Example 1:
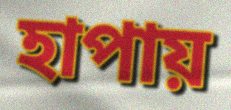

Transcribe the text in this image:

হাপায়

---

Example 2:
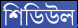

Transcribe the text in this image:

শিডিউল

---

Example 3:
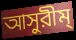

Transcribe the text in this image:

আসুরীম্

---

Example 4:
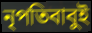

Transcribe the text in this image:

নৃপতিবাবুই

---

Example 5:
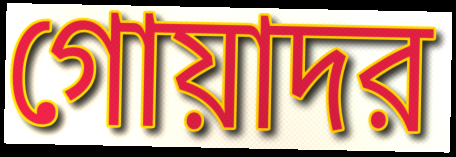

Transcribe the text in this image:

গোয়াদর